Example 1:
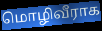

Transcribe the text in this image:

மொழிவீராக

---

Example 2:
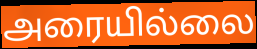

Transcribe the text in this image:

அரையில்லை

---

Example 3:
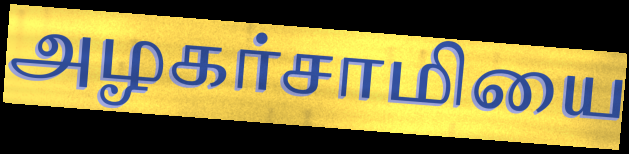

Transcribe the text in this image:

அழகர்சாமியை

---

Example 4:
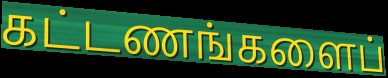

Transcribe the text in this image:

கட்டணங்களைப்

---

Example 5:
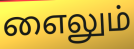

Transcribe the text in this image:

எைலும்